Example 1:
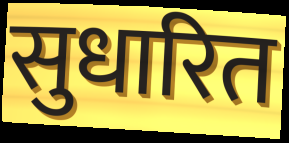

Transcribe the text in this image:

सुधारित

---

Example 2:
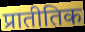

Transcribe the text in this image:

प्रातीतिक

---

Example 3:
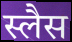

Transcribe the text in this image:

स्लैस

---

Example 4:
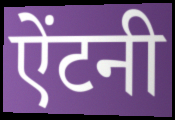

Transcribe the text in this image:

ऐंटनी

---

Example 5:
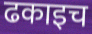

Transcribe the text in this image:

ढकाइच